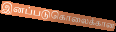
இனப்படுகொலைக்கான